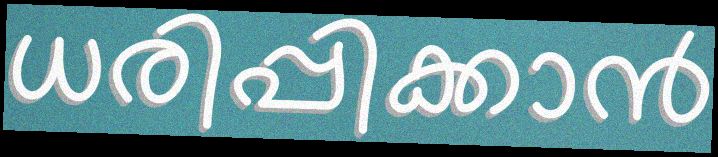
ധരിപ്പിക്കാൻ